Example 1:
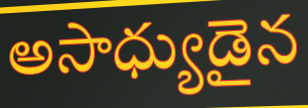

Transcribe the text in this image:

అసాధ్యుడైన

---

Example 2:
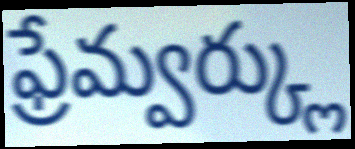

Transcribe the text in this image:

ఫ్రేమ్వర్క్లు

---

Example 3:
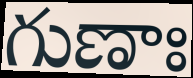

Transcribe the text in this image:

గుణాః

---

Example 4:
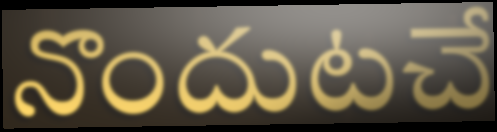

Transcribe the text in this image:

నొందుటచే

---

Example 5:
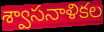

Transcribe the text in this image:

శ్వాసనాళికల